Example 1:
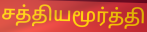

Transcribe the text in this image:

சத்தியமூர்த்தி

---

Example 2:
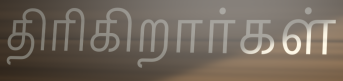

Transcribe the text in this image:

திரிகிறார்கள்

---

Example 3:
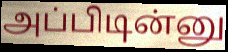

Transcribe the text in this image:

அப்பிடின்னு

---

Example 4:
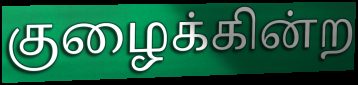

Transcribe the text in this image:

குழைக்கின்ற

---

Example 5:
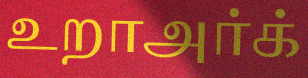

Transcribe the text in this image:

உறாஅர்க்